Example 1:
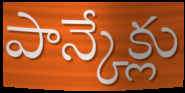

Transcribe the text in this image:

పాన్కేక్లు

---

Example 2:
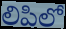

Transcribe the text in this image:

లిపిలో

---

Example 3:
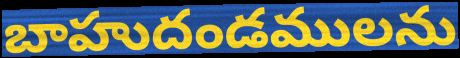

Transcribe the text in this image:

బాహుదండములను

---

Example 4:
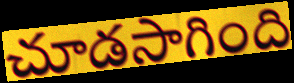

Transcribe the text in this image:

చూడసాగింది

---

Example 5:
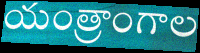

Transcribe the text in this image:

యంత్రాంగాల